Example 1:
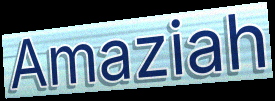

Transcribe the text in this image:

Amaziah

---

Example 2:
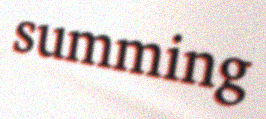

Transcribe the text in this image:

summing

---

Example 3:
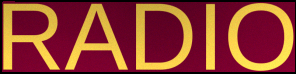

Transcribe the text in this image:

RADIO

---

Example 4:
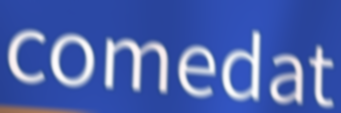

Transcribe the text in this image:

comedat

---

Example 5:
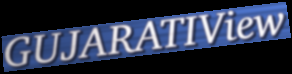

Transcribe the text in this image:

GUJARATIView